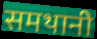
समथानी